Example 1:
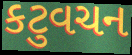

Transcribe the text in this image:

કટુવચન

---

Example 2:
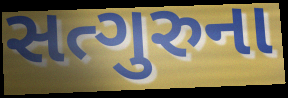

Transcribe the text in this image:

સત્ગુરુના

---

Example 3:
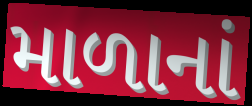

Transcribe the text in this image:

માળાનાં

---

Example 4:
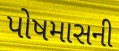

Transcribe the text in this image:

પોષમાસની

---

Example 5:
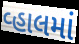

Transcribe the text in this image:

વ્હાલમાં